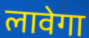
लावेगा